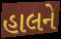
હાલને